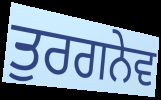
ਤੁਰਗਨੇਵ